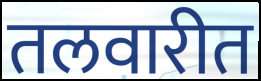
तलवारीत